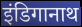
इंडिगानाथ